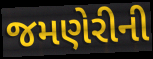
જમણેરીની